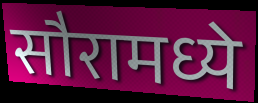
सौरामध्ये